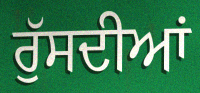
ਰੁੱਸਦੀਆਂ